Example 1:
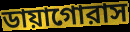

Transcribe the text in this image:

ডায়াগোরাস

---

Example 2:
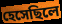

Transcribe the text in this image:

হেসেছিলে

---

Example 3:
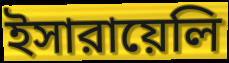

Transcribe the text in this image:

ইসারায়েলি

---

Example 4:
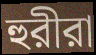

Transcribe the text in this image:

হুরীরা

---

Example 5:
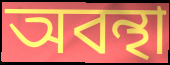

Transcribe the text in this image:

অবন্থা